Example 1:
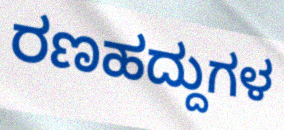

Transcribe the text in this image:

ರಣಹದ್ದುಗಳ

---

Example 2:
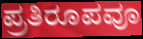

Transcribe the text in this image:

ಪ್ರತಿರೂಪವೂ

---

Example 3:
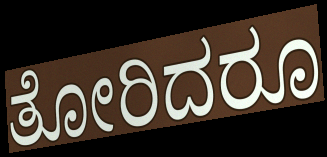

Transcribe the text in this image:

ತೋರಿದರೂ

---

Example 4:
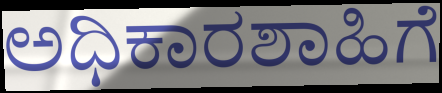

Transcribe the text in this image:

ಅಧಿಕಾರಶಾಹಿಗೆ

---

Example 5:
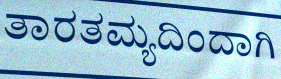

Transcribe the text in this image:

ತಾರತಮ್ಯದಿಂದಾಗಿ